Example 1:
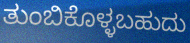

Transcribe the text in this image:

ತುಂಬಿಕೊಳ್ಳಬಹುದು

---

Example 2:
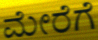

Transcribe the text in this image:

ಮೇರೆಗೆ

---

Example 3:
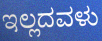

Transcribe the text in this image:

ಇಲ್ಲದವಳು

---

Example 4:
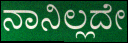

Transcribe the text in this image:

ನಾನಿಲ್ಲದೇ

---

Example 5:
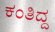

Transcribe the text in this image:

ಕಂತಿದ್ದ